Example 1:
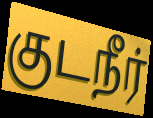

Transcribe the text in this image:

குடநீர்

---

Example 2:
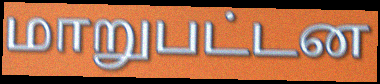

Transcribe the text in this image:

மாறுபட்டன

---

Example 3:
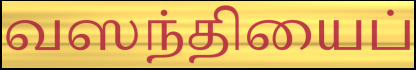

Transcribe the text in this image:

வஸந்தியைப்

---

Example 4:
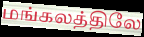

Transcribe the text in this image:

மங்கலத்திலே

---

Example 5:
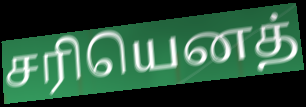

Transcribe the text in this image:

சரியெனத்